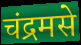
चंद्रमसे